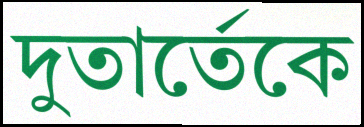
দুতার্তেকে